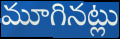
మూగినట్లు